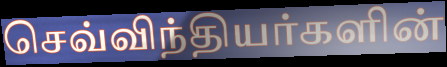
செவ்விந்தியர்களின்